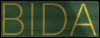
BIDA